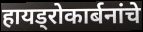
हायड्रोकार्बनांचे